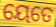
ୟେତେ